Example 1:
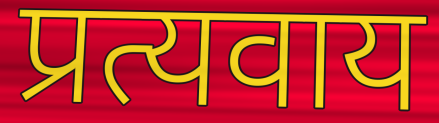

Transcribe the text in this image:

प्रत्यवाय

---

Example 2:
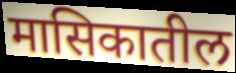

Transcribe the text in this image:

मासिकातील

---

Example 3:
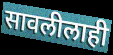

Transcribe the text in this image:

सावलीलाही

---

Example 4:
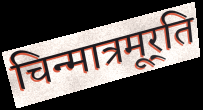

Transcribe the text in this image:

चिन्मात्रमूर्ति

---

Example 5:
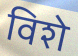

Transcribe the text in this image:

विशे